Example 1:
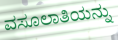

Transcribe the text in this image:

ವಸೂಲಾತಿಯನ್ನು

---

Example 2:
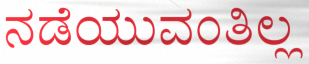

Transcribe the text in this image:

ನಡೆಯುವಂತಿಲ್ಲ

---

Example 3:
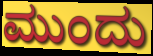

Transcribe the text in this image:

ಮುಂದು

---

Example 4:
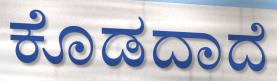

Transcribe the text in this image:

ಕೊಡದಾದೆ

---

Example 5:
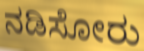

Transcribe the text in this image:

ನಡಿಸೋರು